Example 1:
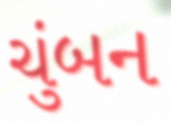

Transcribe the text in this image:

ચુંબન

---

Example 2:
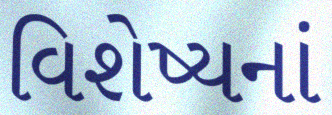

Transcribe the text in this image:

વિશેષ્યનાં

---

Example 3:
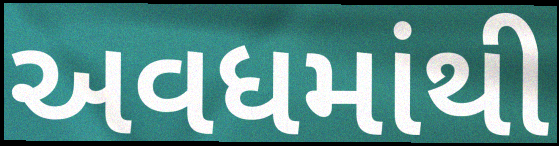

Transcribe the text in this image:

અવધમાંથી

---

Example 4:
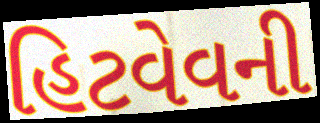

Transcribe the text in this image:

હિટવેવની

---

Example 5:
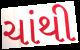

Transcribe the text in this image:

ચાંથી